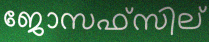
ജോസഫ്സില്